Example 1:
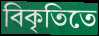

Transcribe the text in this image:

বিকৃতিতে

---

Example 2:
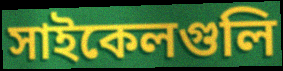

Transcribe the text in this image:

সাইকেলগুলি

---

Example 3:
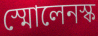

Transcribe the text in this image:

স্মোলেনস্ক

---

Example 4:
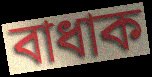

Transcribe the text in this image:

বাধাক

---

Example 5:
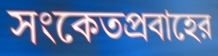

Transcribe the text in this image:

সংকেতপ্রবাহের